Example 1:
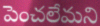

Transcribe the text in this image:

పెంచలేమని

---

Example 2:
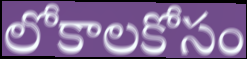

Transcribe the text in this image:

లోకాలకోసం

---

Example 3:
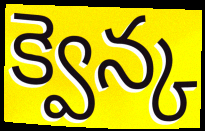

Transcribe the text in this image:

క్వెన్క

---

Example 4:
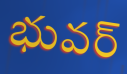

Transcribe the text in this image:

భువర్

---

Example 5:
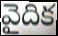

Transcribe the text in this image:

వైదిక